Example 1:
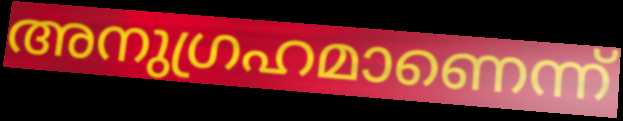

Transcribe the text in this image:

അനുഗ്രഹമാണെന്ന്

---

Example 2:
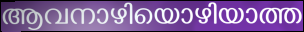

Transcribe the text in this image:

ആവനാഴിയൊഴിയാത്ത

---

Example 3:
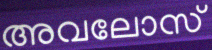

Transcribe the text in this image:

അവലോസ്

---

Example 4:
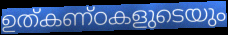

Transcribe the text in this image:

ഉത്കണ്ഠകളുടെയും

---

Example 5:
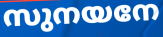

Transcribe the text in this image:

സുനയനേ